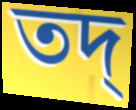
তদ্